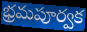
భ్రమపూర్వక